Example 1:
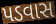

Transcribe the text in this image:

પડવાસ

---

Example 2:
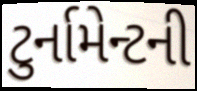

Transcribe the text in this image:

ટુર્નામેન્ટની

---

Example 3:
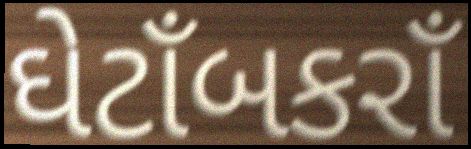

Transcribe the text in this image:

ઘેટાઁબકરાઁ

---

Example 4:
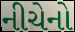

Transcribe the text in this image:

નીચેનો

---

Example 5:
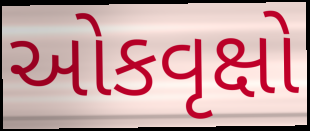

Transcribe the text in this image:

ઓકવૃક્ષો